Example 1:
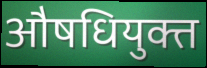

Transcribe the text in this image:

औषधियुक्त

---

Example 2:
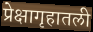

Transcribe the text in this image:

प्रेक्षागृहातली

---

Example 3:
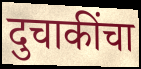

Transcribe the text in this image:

दुचाकींचा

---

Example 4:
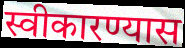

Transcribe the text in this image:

स्वीकारण्यास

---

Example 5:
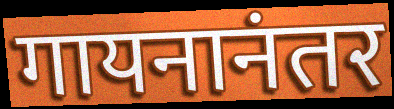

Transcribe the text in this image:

गायनानंतर